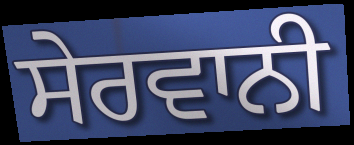
ਸੇਰਵਾਨੀ